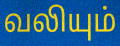
வலியும்